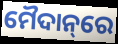
ମୈଦାନ୍‌ରେ